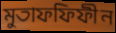
মুতাফফিফীন